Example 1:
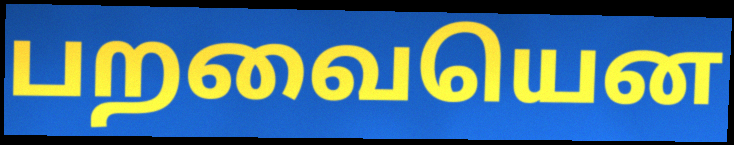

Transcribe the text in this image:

பறவையென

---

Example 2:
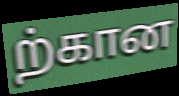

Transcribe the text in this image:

ற்கான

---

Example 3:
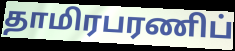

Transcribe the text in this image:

தாமிரபரணிப்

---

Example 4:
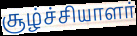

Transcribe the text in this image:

சூழ்ச்சியாளர்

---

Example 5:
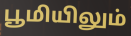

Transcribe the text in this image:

பூமியிலும்